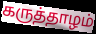
கருத்தாழம்